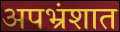
अपभ्रंशात